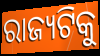
ରାଜ୍ୟଟିକୁ